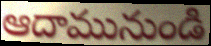
ఆదామునుండి